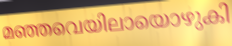
മഞ്ഞവെയിലായൊഴുകി